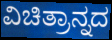
ವಿಚಿತ್ರಾನ್ನದ